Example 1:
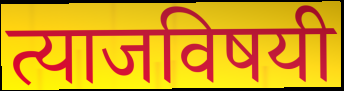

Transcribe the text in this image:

त्याजविषयी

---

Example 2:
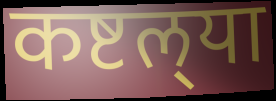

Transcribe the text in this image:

कष्टल्या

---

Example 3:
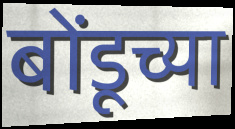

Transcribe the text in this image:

बोंडूच्या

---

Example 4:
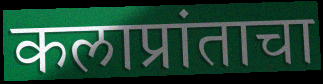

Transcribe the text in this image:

कलाप्रांताचा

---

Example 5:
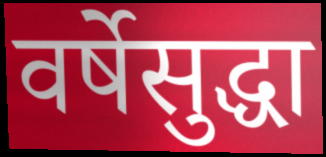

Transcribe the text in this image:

वर्षेसुद्धा